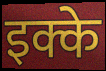
इक्के